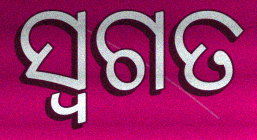
ସ୍ଵଗତ